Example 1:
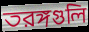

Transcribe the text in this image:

তরঙ্গগুলি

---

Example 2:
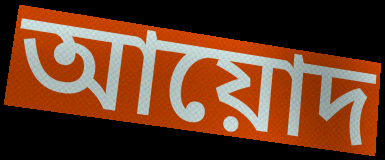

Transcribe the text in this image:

আয়োদ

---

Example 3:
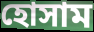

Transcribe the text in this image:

হোসাম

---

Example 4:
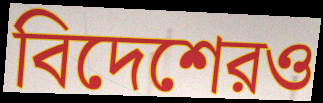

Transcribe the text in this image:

বিদেশেরও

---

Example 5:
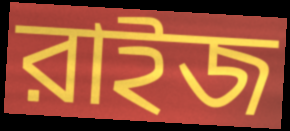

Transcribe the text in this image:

রাইজ